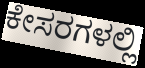
ಕೇಸರಗಳಲ್ಲಿ